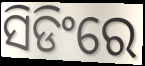
ସିଡିଂରେ